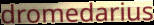
dromedarius